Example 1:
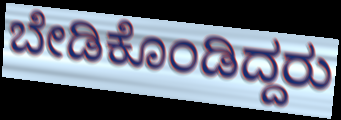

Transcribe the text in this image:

ಬೇಡಿಕೊಂಡಿದ್ದರು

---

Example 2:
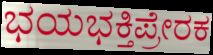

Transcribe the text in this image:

ಭಯಭಕ್ತಿಪ್ರೇರಕ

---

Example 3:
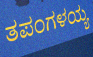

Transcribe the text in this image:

ತಪಂಗಳಯ್ಯ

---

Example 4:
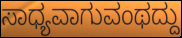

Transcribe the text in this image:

ಸಾಧ್ಯವಾಗುವಂಥದ್ದು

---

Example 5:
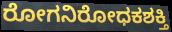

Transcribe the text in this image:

ರೋಗನಿರೋಧಕಶಕ್ತಿ